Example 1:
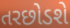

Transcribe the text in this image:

તરછોડશે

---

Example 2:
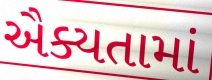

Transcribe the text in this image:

ઐક્યતામાં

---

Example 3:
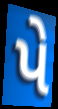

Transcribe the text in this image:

પે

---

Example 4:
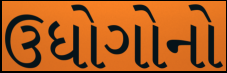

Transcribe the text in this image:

ઉધોગોનો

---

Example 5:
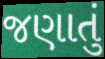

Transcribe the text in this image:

જણાતું